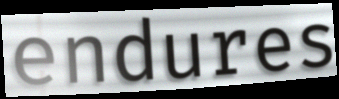
endures